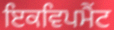
ਇਕਵਿਪਮੈਂਟ